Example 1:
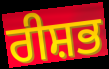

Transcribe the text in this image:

ਰੀਸ਼ਭ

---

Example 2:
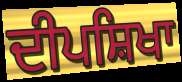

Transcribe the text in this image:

ਦੀਪਸ਼ਿਖਾ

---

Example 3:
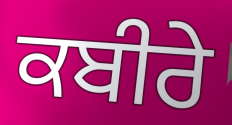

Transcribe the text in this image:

ਕਬੀਰੇ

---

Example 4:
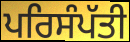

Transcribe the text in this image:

ਪਰਿਸੰਪੱਤੀ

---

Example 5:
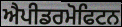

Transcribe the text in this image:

ਐਪੀਡਰਮੋਫਿਟਨ